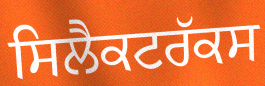
ਸਿਲੈਕਟਰੱਕਸ